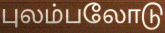
புலம்பலோடு